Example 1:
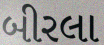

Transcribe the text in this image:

બીરલા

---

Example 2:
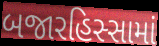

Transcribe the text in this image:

બજારહિસ્સામાં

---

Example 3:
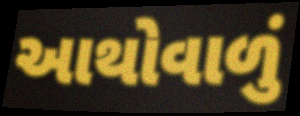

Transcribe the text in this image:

આથોવાળું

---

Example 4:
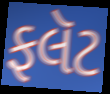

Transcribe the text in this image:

ફલૅટ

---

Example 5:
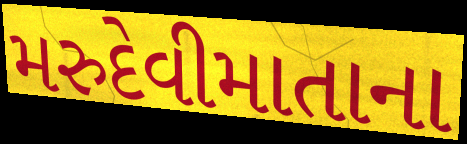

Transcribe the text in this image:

મરુદેવીમાતાના